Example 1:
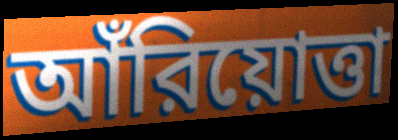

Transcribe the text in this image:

আঁরিয়োত্তা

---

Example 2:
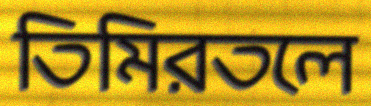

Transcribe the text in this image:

তিমিরতলে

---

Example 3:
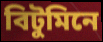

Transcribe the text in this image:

বিটুমিনে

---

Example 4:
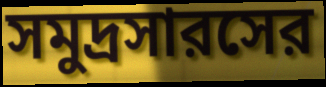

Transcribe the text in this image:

সমুদ্রসারসের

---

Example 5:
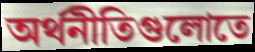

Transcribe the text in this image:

অর্থনীতিগুলোতে